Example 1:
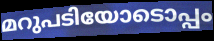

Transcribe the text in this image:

മറുപടിയോടൊപ്പം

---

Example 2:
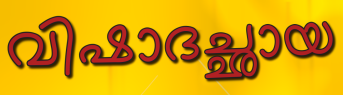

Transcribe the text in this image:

വിഷാദച്ഛായ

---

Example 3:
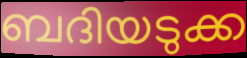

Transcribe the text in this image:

ബദിയടുക്ക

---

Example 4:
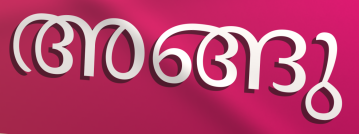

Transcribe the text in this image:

അങ്ങു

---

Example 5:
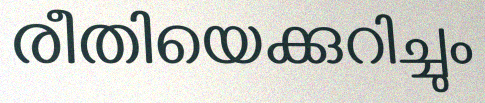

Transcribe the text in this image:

രീതിയെക്കുറിച്ചും